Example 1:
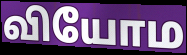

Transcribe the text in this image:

வியோம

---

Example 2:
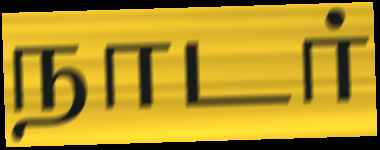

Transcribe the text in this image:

நாடர்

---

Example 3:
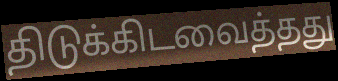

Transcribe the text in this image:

திடுக்கிடவைத்தது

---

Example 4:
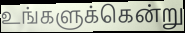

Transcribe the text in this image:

உங்களுக்கென்று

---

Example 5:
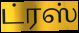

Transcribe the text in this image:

ட்ரஸ்